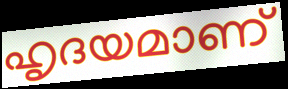
ഹൃദയമാണ്